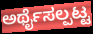
ಅರ್ಥೈಸಲ್ಪಟ್ಟ